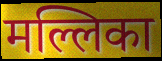
मल्लिका